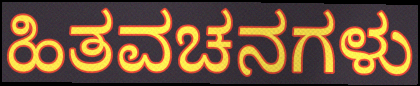
ಹಿತವಚನಗಳು